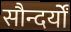
सौन्दर्यों